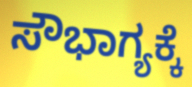
ಸೌಭಾಗ್ಯಕ್ಕೆ